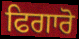
ਫਿਗਾਰੋ